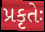
પ્રકૃતેઃ